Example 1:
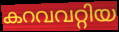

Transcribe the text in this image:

കറവവറ്റിയ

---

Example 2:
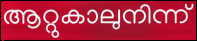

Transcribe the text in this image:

ആറ്റുകാലുനിന്ന്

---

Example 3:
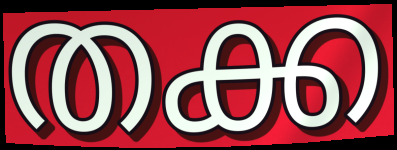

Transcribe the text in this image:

തക്ക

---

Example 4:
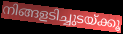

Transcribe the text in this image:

നിങ്ങളടിച്ചുടയ്ക്കൂ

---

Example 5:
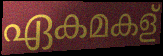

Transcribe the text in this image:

ഏകമകള്